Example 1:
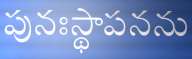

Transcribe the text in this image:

పునఃస్థాపనను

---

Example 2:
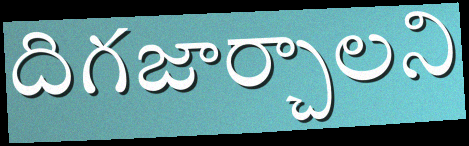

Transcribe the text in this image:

దిగజార్చాలని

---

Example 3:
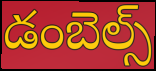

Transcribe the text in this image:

డంబెల్స్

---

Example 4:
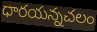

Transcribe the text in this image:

ధారయన్నచలం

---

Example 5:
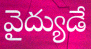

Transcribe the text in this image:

వైద్యుడే